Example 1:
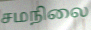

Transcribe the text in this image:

சமநிலை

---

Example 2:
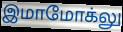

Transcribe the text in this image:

இமாமோக்லு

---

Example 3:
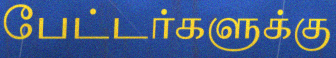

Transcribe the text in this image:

பேட்டர்களுக்கு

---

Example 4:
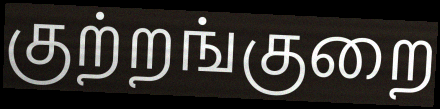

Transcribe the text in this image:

குற்றங்குறை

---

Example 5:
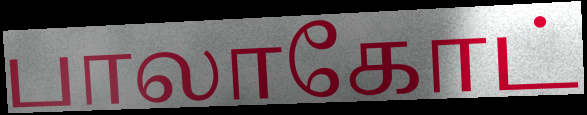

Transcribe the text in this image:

பாலாகோட்